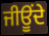
ਜੀਊਂਦੇ